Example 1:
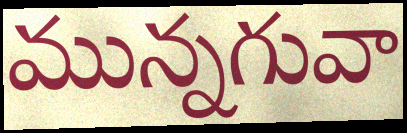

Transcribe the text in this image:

మున్నగువా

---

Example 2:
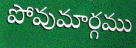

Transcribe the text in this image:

పోవుమార్గము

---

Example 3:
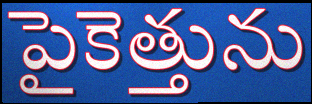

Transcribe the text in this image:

పైకెత్తును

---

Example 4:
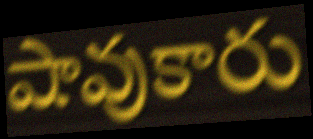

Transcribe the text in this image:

షావుకారు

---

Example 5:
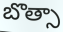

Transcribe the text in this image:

బొత్సా